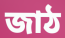
জাঠ